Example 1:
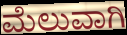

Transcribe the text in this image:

ಮೆಲುವಾಗಿ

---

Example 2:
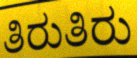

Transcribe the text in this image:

ತಿರುತಿರು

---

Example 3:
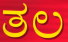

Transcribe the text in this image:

ತಲ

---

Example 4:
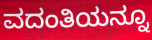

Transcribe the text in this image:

ವದಂತಿಯನ್ನೂ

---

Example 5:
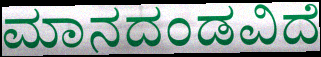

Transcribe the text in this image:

ಮಾನದಂಡವಿದೆ